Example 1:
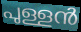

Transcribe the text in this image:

പുള്ളൻ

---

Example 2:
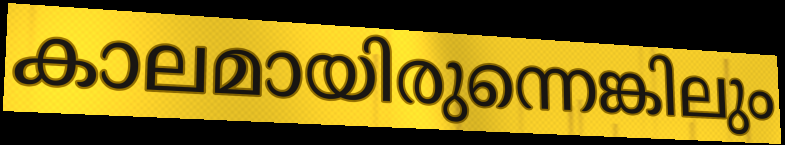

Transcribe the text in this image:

കാലമായിരുന്നെങ്കിലും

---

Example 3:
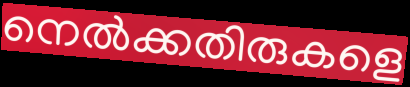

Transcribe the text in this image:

നെൽക്കതിരുകളെ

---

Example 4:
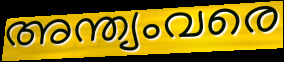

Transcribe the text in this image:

അന്ത്യംവരെ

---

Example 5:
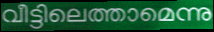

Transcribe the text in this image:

വീട്ടിലെത്താമെന്നു